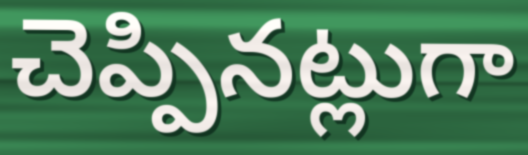
చెప్పినట్లుగా